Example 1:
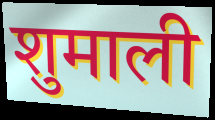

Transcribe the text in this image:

शुमाली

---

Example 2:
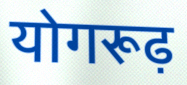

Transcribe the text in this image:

योगरूढ़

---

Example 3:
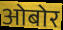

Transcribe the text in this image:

ओबोर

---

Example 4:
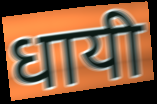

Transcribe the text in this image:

धायी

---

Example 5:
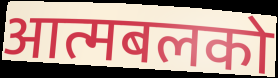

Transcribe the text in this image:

आत्मबलको